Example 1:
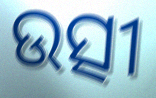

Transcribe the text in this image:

ଉତ୍ସୀ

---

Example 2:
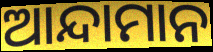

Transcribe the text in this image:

ଆନ୍ଦାମାନ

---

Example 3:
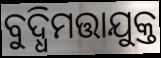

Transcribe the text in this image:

ବୁଦ୍ଧିମତ୍ତାଯୁକ୍ତ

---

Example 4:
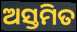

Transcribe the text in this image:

ଅସ୍ତମିତ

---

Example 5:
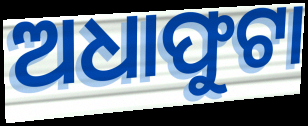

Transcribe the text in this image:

ଅଧାଫୁଟା